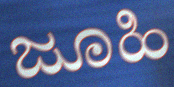
ಜೂಹಿ